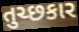
તુચ્છકાર